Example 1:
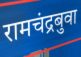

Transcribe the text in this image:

रामचंद्रबुवा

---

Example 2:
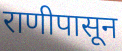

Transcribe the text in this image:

राणीपासून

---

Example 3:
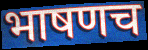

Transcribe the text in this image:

भाषणच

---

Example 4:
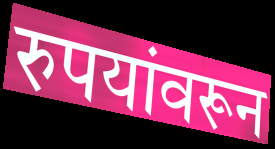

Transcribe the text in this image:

रुपयांवरून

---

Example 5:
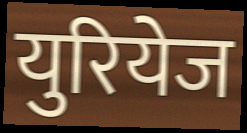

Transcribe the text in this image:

युरियेज